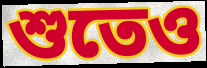
শুতেও